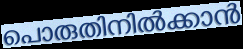
പൊരുതിനിൽക്കാൻ